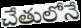
చేతులోనే